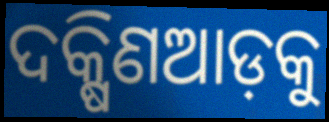
ଦକ୍ଷିଣଆଡ଼କୁ